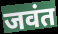
जवंत